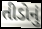
તીડોનું